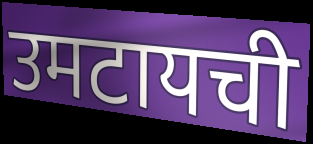
उमटायची